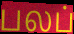
பலப்